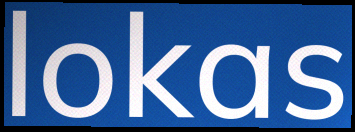
lokas